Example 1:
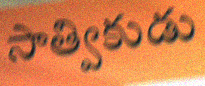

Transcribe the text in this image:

సాత్వికుడు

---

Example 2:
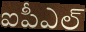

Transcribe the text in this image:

ఐపీఎల్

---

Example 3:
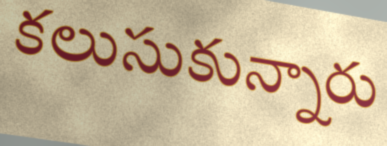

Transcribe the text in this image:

కలుసుకున్నారు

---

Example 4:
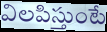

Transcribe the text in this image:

విలపిస్తుంటే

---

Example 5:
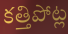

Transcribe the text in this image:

కత్తిపోట్ల